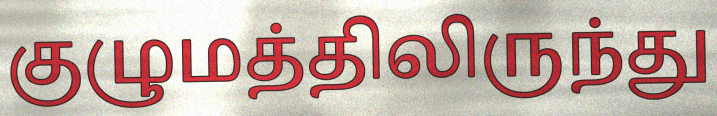
குழுமத்திலிருந்து